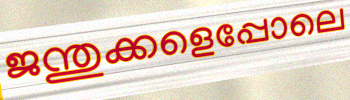
ജന്തുക്കളെപ്പോലെ